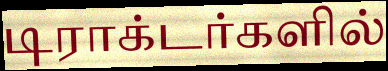
டிராக்டர்களில்